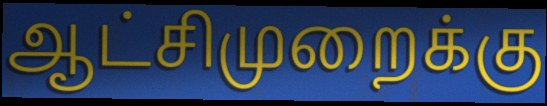
ஆட்சிமுறைக்கு